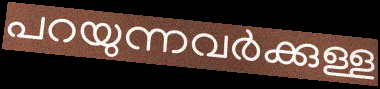
പറയുന്നവർക്കുള്ള